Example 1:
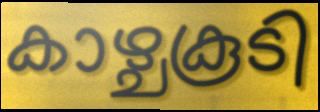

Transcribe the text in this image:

കാഴ്ചകൂടി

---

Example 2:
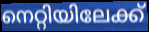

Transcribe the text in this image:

നെറ്റിയിലേക്ക്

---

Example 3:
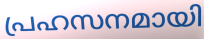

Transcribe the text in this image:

പ്രഹസനമായി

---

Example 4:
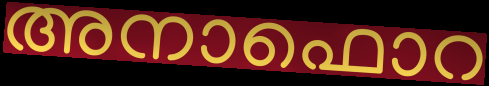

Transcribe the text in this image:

അനാഫൊറ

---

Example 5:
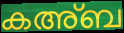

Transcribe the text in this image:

കഅ്ബ